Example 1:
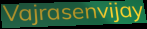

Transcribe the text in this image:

Vajrasenvijay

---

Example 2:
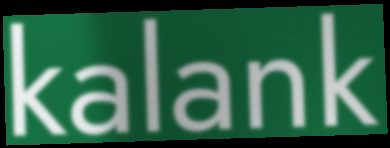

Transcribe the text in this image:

kalank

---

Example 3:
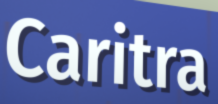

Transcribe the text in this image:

Caritra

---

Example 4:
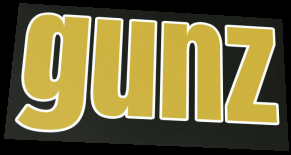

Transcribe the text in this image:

gunz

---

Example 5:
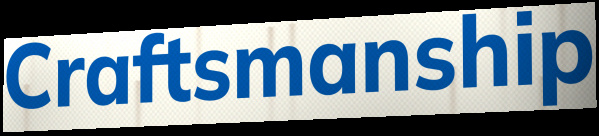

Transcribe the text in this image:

Craftsmanship